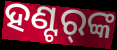
ହଣ୍ଟର୍‌ଙ୍କ